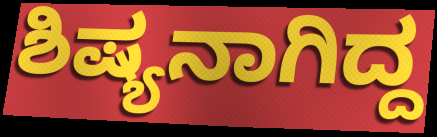
ಶಿಷ್ಯನಾಗಿದ್ದ